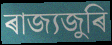
ৰাজ্যজুৰি